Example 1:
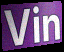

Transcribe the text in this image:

Vin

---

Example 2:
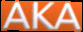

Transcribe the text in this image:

AKA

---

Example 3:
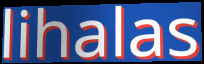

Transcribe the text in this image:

lihalas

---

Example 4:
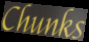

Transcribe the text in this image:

Chunks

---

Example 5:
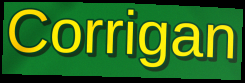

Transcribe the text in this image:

Corrigan